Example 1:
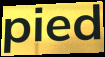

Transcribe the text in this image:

pied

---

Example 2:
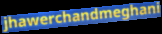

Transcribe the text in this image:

jhawerchandmeghani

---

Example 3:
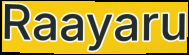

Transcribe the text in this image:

Raayaru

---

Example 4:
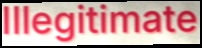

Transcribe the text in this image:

Illegitimate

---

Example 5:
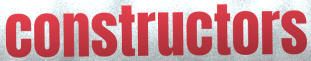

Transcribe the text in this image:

constructors